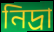
নিদ্রা